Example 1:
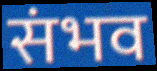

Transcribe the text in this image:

संभव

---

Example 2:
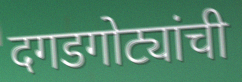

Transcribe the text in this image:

दगडगोट्यांची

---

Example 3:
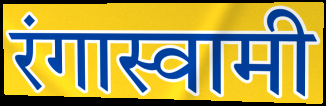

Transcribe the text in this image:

रंगास्वामी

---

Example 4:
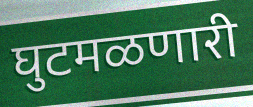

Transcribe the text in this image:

घुटमळणारी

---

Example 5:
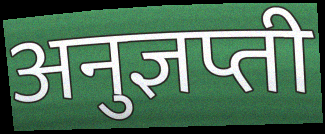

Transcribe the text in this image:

अनुज्ञप्ती